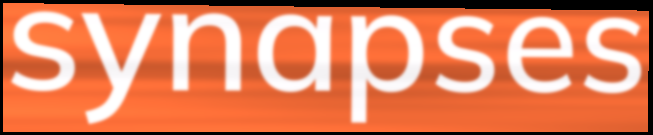
synapses